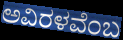
ಅವಿರಳವೆಂಬ